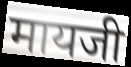
मायजी